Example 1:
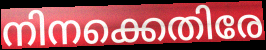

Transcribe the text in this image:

നിനക്കെതിരേ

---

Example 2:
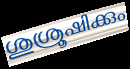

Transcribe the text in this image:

ശുശ്രൂഷിക്കും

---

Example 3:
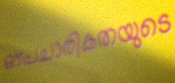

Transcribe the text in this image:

ഔപചാരികതയുടെ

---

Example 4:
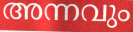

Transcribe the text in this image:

അന്നവും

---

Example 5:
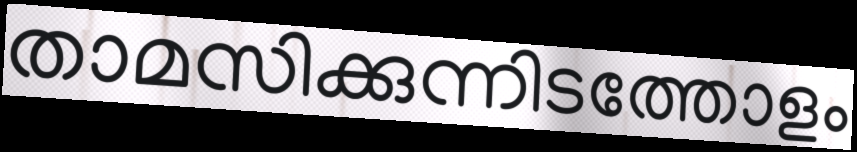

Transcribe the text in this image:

താമസിക്കുന്നിടത്തോളം